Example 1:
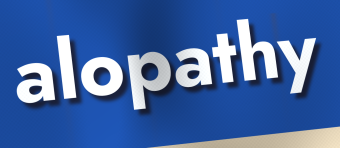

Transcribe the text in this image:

alopathy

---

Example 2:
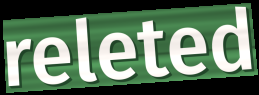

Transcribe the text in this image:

releted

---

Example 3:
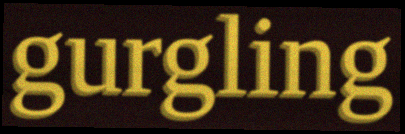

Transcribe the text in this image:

gurgling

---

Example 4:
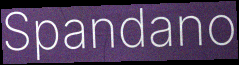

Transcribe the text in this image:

Spandano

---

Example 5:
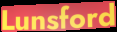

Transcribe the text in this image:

Lunsford